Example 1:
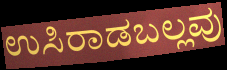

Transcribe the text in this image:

ಉಸಿರಾಡಬಲ್ಲವು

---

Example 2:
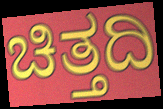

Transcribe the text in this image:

ಚಿತ್ತದಿ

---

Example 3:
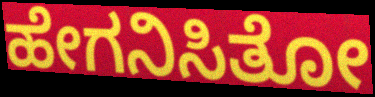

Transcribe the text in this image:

ಹೇಗನಿಸಿತೋ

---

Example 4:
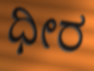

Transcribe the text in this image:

ಧೀರ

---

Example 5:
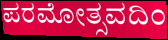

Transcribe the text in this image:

ಪರಮೋತ್ಸವದಿಂ